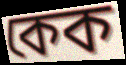
কেক